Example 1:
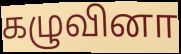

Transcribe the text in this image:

கழுவினா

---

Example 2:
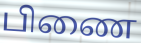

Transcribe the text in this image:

பிணை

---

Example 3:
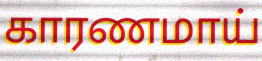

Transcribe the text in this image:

காரணமாய்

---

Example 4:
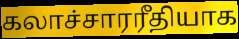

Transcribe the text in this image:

கலாச்சாரரீதியாக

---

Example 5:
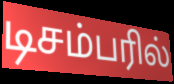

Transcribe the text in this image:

டிசம்பரில்